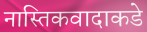
नास्तिकवादाकडे